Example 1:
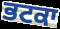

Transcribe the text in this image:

ਭਟਕਾ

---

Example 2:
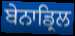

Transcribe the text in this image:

ਬੇਨਾਡ੍ਰਿਲ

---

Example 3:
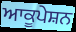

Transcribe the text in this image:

ਆਕੂਪੇਸ਼ਨ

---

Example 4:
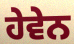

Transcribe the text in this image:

ਹੇਵੇਨ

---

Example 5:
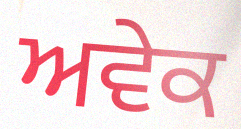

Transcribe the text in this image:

ਅਵੇਕ